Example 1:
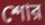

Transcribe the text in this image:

শোর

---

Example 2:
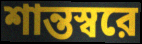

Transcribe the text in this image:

শান্তস্বরে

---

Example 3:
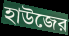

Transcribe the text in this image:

হাউজের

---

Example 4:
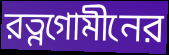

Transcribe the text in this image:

রত্নগোমীনের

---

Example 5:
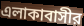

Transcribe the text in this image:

এলাকাবাসীর